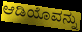
ಆಡಿಯೊವನ್ನು